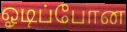
ஓடிப்போன